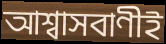
আশ্বাসবাণীই